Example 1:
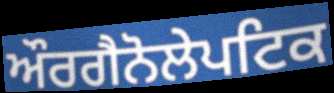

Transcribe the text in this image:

ਔਰਗੈਨੋਲੇਪਟਿਕ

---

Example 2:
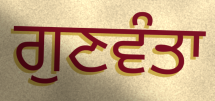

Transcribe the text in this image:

ਗੁਣਵੰਤਾ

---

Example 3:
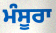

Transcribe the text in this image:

ਮੰਸੂਰਾ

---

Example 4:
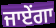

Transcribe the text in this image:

ਜਾਏਂਗਾ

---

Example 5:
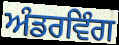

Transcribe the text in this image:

ਅੰਡਰਵਿੰਗ